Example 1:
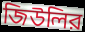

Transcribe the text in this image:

জিউলির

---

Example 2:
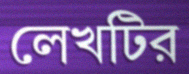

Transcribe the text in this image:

লেখটির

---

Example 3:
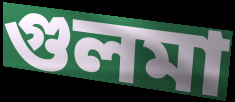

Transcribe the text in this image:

গুলমা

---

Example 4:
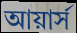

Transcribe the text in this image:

আয়ার্স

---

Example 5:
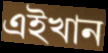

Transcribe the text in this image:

এইখান